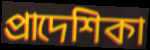
প্রাদেশিকা